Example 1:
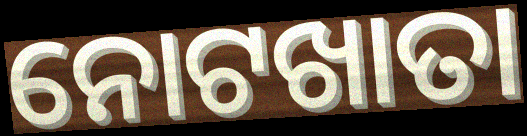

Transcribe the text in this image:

ନୋଟଖାତା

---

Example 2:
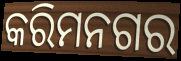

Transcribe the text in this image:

କରିମନଗର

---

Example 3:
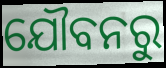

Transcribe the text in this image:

ଯୌବନରୁ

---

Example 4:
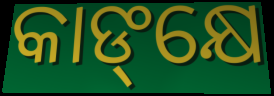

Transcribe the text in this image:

କାଙ୍‌କ୍ଷେ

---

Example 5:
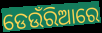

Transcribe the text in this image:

ଡେଉଁରିଆରେ